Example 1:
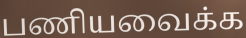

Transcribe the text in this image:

பணியவைக்க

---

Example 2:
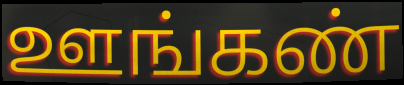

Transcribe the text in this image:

ஊங்கண்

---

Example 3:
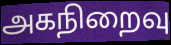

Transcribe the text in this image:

அகநிறைவு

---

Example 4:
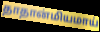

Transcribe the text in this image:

தாதான்மியமாய்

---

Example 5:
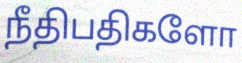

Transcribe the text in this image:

நீதிபதிகளோ